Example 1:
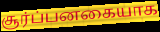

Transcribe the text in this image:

சூர்ப்பனகையாக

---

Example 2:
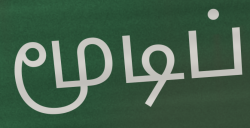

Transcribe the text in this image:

மூடிப்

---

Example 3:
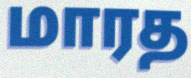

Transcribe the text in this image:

மாரத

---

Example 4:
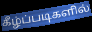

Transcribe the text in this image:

கீழ்ப்படிகளில்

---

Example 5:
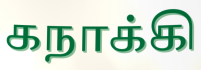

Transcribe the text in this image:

கநாக்கி